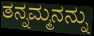
ತನ್ನಮ್ಮನನ್ನು